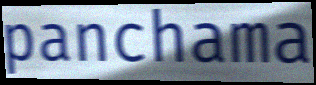
panchama